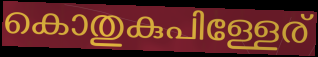
കൊതുകുപിള്ളേര്